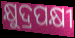
କ୍ଷୁଦ୍ରପକ୍ଷୀ